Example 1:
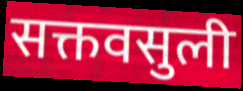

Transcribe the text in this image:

सक्तवसुली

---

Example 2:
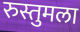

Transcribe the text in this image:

रुस्तुमला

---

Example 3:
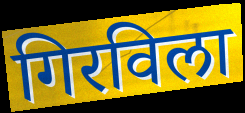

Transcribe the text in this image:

गिरविला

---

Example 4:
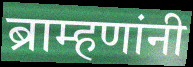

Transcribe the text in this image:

ब्राम्हणांनी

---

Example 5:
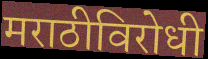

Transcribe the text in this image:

मराठीविरोधी